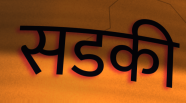
सडकी